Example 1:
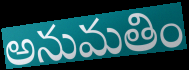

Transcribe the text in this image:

అనుమతిం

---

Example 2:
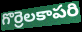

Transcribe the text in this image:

గొర్రెలకాపరి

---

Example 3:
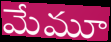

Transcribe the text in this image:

మేమూ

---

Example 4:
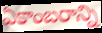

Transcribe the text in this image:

ఏకాంబరాన్ని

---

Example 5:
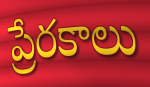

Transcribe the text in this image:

ప్రేరకాలు